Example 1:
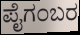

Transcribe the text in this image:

ಪೈಗಂಬರ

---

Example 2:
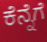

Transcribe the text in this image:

ಕೆನ್ನೆಗೆ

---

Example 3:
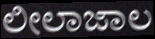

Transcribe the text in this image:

ಲೀಲಾಜಾಲ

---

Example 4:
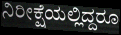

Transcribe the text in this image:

ನಿರೀಕ್ಷೆಯಲ್ಲಿದ್ದರೂ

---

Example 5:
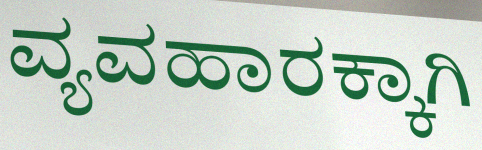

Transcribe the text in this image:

ವ್ಯವಹಾರಕ್ಕಾಗಿ